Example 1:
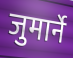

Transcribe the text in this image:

जुमार्ने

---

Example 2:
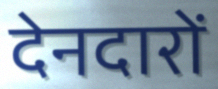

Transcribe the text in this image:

देनदारों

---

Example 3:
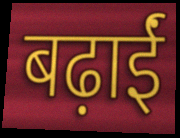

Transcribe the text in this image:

बढ़ाईं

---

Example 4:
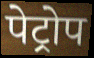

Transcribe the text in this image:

पेट्रोप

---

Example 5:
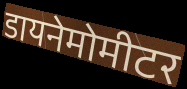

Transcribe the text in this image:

डायनेमोमीटर